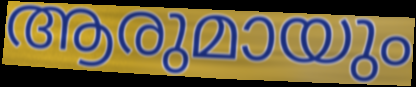
ആരുമായും